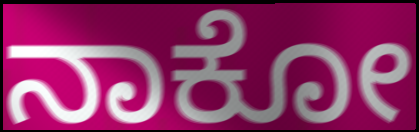
ನಾಕೋ